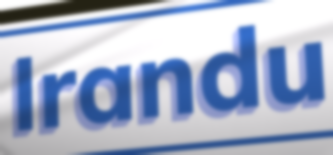
Irandu